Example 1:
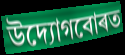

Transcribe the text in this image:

উদ্যোগবোৰত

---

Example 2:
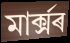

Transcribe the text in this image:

মাৰ্ক্সৰ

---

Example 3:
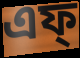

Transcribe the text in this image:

এফ্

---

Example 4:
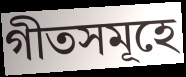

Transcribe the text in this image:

গীতসমূহে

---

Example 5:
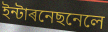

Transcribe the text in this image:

ইন্টাৰনেছনেলে